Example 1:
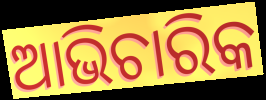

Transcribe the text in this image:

ଆଭିଚାରିକ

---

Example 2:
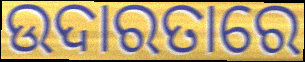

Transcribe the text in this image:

ଉଦାରତାରେ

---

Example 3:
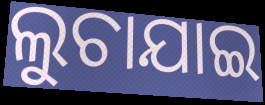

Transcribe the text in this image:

ଲୁଚାଯାଇ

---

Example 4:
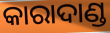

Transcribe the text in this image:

କାରାଦାଣ୍ଡ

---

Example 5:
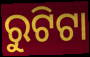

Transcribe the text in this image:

ରୁଟିଟା